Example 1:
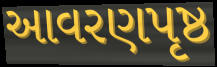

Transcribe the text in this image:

આવરણપૃષ્ઠ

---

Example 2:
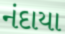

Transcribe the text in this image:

નંદાયા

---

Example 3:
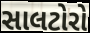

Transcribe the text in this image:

સાલટોરો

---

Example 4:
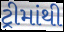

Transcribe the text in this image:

ટ્રીમાંથી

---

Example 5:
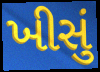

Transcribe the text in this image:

ખીસું